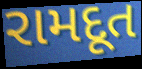
રામદૂત